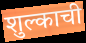
शुल्काची